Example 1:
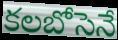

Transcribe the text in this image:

కలబోసెనే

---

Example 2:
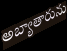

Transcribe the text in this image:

అబ్యాతారును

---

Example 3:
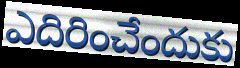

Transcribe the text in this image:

ఎదిరించేందుకు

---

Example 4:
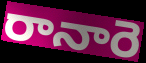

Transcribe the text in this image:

రానారె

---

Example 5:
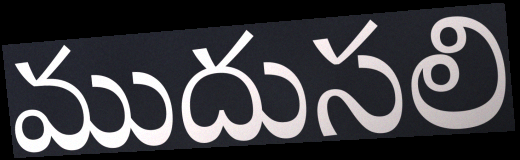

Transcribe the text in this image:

ముదుసలి